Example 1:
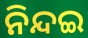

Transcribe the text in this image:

ନିନ୍ଦଇ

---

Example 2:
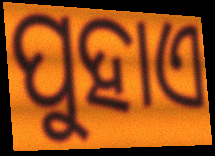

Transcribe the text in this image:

ପୁହାଏ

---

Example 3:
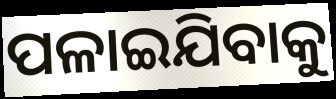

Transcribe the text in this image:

ପଳାଇଯିବାକୁ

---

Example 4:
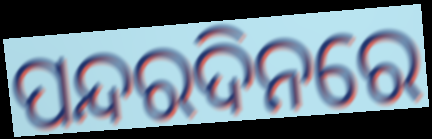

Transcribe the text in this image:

ପନ୍ଦରଦିନରେ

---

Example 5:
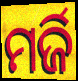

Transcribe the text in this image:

ମର୍ଜି